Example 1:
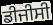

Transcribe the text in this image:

ਡੀਜੀਸੀ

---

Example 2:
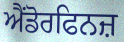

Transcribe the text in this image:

ਐਂਡੋਰਫਿਨਜ਼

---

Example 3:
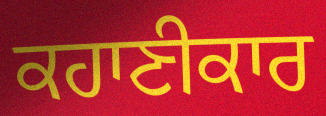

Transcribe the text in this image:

ਕਹਾਣੀਕਾਰ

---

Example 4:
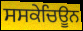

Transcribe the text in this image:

ਸਸਕੇਚਿਊਨ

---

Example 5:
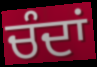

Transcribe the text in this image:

ਚੰਦਾਂ